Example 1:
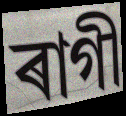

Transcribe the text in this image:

ৰাগী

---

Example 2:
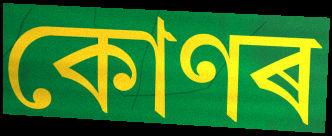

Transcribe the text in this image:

কোণৰ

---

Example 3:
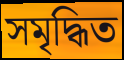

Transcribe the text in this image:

সমৃদ্ধিত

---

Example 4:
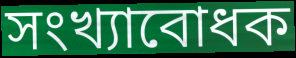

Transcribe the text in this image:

সংখ্যাবোধক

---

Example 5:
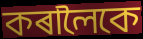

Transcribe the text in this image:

কৰালৈকে